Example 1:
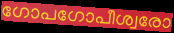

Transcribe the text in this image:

ഗോപഗോപീശ്വരോ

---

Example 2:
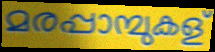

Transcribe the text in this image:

മരപ്പാമ്പുകള്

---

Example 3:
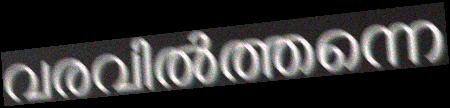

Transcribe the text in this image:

വരവിൽത്തന്നെ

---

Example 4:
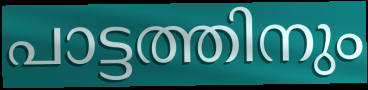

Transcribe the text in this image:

പാട്ടത്തിനും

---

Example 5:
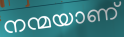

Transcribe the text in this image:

നന്മയാണ്